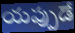
యప్పుడే